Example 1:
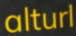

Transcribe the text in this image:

alturl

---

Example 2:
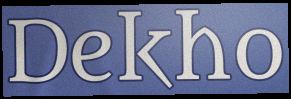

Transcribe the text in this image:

Dekho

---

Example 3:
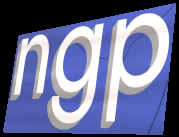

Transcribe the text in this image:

ngp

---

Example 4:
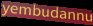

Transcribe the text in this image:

yembudannu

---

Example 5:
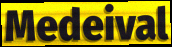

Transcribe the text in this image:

Medeival